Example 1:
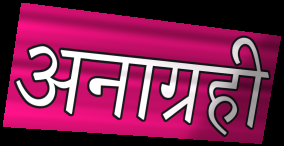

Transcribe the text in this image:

अनाग्रही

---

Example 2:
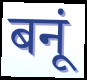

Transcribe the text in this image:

बनूं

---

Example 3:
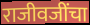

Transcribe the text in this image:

राजीवजींचा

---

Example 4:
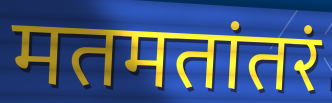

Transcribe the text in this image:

मतमतांतरं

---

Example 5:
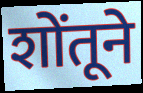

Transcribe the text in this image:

शोंतूने